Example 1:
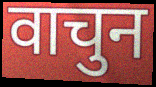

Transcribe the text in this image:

वाचुन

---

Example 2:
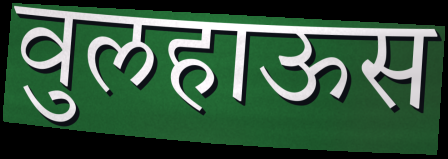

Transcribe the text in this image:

वुलहाऊस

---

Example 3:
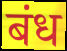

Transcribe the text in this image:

बंध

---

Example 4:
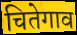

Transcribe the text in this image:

चितेगाव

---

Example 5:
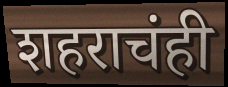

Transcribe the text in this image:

शहराचंही